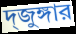
দ্জুঙ্গার